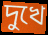
দুখে